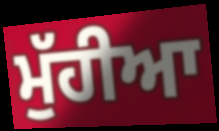
ਮੁੱਹੀਆ